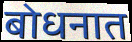
बोधनात